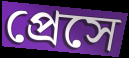
প্রেসে